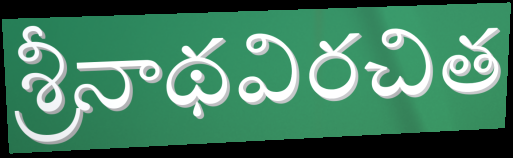
శ్రీనాథవిరచిత